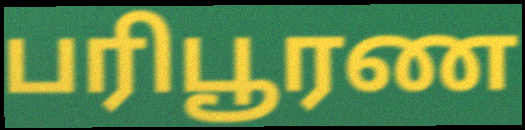
பரிபூரண